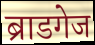
ब्राडगेज